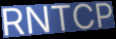
RNTCP